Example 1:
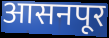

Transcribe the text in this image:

आसनपूर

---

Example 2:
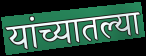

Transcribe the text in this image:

यांच्यातल्या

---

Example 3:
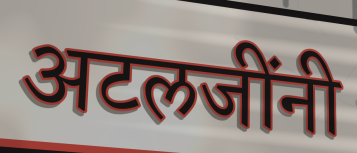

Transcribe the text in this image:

अटलजींनी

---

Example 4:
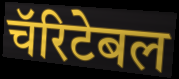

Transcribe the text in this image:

चॅरिटेबल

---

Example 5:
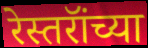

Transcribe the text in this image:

रेस्तरॉंच्या